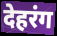
देहरंग